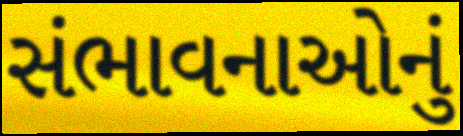
સંભાવનાઓનું